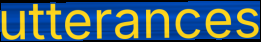
utterances